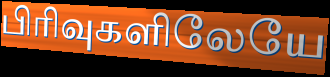
பிரிவுகளிலேயே